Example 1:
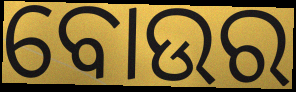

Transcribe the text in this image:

ବୋଉର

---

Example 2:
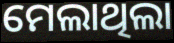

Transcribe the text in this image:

ମେଲାଥିଲା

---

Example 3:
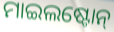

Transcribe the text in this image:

ମାଇଲଷ୍ଟୋନ୍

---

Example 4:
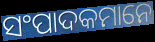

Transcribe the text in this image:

ସଂପାଦକମାନେ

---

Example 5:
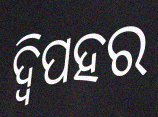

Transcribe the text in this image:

ଦ୍ୱିପହର